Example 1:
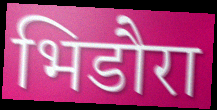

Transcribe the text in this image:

भिडौरा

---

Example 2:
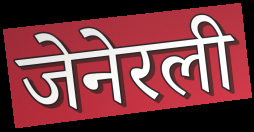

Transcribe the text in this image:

जेनेरली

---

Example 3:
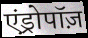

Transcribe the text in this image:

एंड्रोपॉज़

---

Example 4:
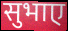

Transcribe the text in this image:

सुभाए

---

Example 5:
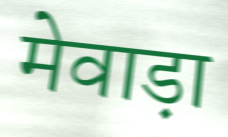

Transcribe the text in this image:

मेवाड़ा